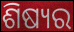
ଶିଷ୍ୟର